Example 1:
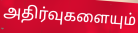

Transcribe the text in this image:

அதிர்வுகளையும்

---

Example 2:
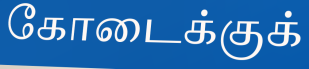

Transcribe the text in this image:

கோடைக்குக்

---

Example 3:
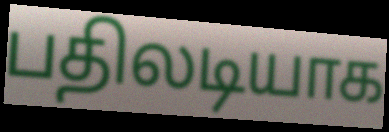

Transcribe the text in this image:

பதிலடியாக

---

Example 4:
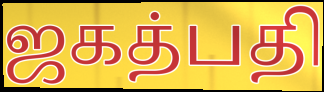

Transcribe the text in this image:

ஜகத்பதி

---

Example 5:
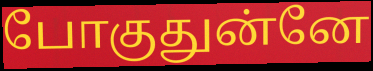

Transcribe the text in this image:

போகுதுன்னே